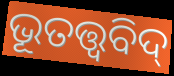
ଭୂତତ୍ତ୍ବବିଦ୍